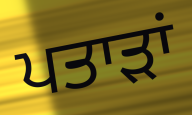
ਪਤਾੜਾਂ